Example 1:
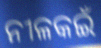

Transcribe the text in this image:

ନୀଳକଇଁ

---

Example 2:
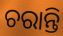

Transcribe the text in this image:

ଚରାନ୍ତି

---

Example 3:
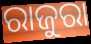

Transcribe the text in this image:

ରାଜୁରା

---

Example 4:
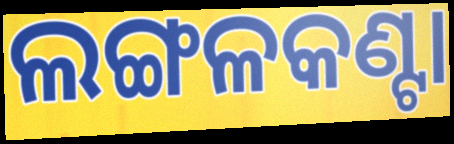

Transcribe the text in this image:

ଲଙ୍ଗଳକଣ୍ଟା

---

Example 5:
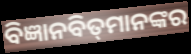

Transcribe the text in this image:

ବିଜ୍ଞାନବିତ୍‌ମାନଙ୍କର